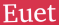
Euet